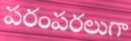
పరంపరలుగా